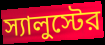
স্যালুস্টের